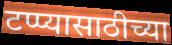
टप्प्यासाठीच्या